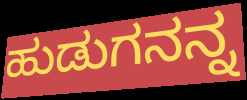
ಹುಡುಗನನ್ನ